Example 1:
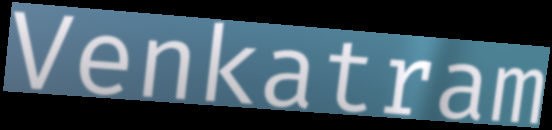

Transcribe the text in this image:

Venkatram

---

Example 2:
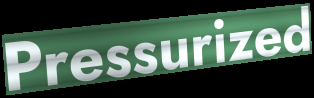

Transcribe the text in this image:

Pressurized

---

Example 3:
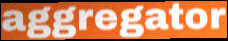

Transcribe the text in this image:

aggregator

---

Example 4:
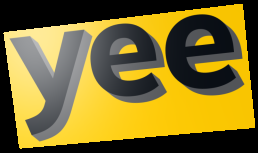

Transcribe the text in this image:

yee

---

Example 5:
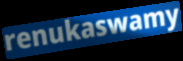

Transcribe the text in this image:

renukaswamy